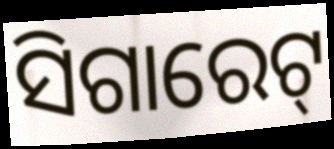
ସିଗାରେଟ୍